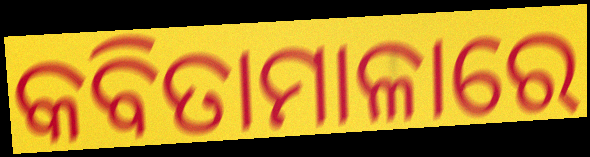
କବିତାମାଳାରେ